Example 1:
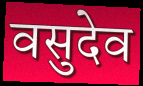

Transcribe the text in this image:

वसुदेव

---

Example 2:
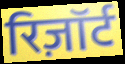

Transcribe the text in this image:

रिज़ॉर्ट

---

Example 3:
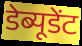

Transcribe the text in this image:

डेब्यूडेंट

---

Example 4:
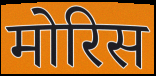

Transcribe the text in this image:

मोरिस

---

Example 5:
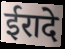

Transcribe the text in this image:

ईरादे